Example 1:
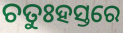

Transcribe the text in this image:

ଚତୁଃହସ୍ତରେ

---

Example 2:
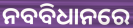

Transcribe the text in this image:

ନବବିଧାନରେ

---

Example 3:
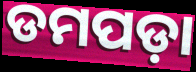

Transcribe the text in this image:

ଡମପଡ଼ା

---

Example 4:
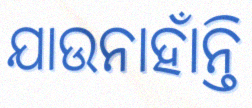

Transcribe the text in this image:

ଯାଉନାହାଁନ୍ତି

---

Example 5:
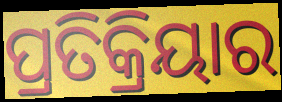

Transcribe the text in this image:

ପ୍ରତିକ୍ରିୟାର